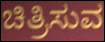
ಚಿತ್ರಿಸುವ